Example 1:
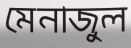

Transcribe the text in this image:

মেনাজুল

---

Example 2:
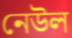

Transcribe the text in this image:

নেউল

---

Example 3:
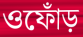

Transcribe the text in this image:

ওফোঁড়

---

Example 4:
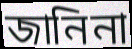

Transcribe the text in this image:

জানিনা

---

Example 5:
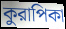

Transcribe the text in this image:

কুরাপিকা